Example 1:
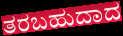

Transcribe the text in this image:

ತರಬಹುದಾದ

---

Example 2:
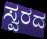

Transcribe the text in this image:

ಸ್ವರದ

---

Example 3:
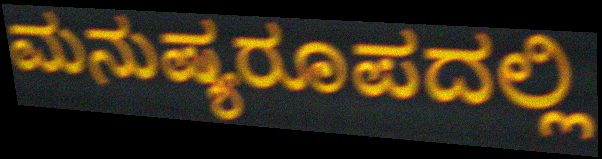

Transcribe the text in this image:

ಮನುಷ್ಯರೂಪದಲ್ಲಿ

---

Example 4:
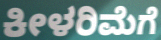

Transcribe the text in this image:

ಕೀಳರಿಮೆಗೆ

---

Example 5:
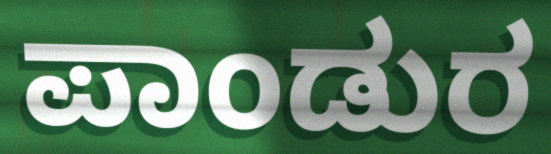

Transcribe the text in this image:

ಪಾಂಡುರ